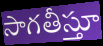
సాగతీస్తూ